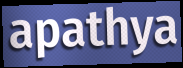
apathya